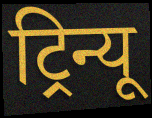
ट्रिन्यू